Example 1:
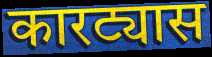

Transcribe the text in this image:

कारट्यास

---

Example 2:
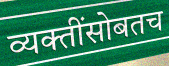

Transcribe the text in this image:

व्यक्तींसोबतच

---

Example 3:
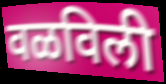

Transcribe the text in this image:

वळविली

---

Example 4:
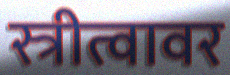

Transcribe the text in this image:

स्त्रीत्वावर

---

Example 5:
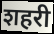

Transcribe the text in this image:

शहरी